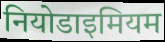
नियोडाइमियम